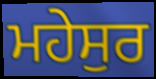
ਮਹੇਸੁਰ